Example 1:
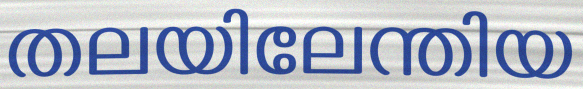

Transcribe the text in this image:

തലയിലേന്തിയ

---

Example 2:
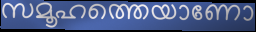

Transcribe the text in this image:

സമൂഹത്തെയാണോ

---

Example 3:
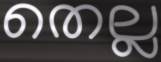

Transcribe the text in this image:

തെല്ല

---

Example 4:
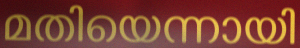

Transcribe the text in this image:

മതിയെന്നായി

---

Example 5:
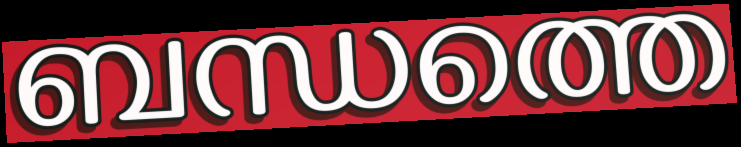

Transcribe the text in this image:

ബന്ധത്തെ